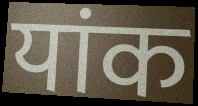
यांक